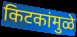
किटकांमुळे